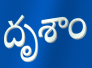
దృశాం